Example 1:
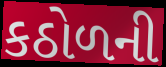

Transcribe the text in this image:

કઠોળની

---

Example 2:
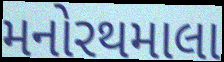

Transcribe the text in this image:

મનોરથમાલા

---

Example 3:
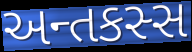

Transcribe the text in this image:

અન્તકસ્સ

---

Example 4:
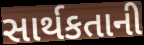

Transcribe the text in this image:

સાર્થકતાની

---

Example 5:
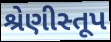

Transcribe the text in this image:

શ્રેણીસ્તૂપ